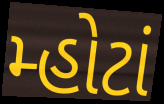
મ્હોટાં